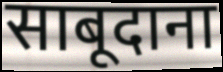
साबूदाना